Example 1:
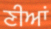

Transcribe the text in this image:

ਣੀਆਂ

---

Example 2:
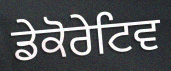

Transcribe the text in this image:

ਡੇਕੋਰੇਟਿਵ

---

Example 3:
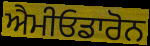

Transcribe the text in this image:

ਐਮੀਓਡਾਰੋਨ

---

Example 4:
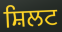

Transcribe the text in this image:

ਸ਼ਿਲਟ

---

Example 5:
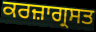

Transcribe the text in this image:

ਕਰਜ਼ਾਗ੍ਰਸਤ